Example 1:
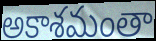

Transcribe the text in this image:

అకాశమంతా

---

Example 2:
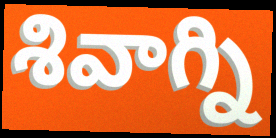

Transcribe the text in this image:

శివాగ్ని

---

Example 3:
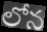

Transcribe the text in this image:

లోన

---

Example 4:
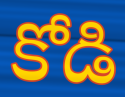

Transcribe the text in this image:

కోడి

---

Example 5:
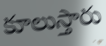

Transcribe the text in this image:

కూలుస్తారు